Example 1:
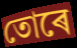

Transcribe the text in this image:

তোৰে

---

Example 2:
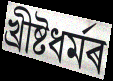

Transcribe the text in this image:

খ্ৰীষ্টধৰ্মৰ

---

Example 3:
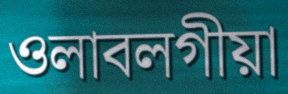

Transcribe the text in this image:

ওলাবলগীয়া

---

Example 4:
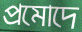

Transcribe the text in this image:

প্ৰমোদে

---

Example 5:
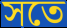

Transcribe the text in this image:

সতে